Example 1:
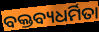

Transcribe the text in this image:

ବକ୍ତବ୍ୟଧର୍ମିତା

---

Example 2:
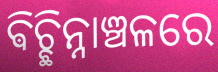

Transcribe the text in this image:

ଵିଚ୍ଛିନ୍ନାଞ୍ଚଳରେ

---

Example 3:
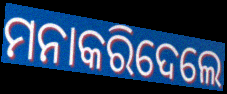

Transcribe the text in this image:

ମନାକରିଦେଲେ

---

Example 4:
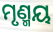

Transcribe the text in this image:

ମୃଣ୍ମୟ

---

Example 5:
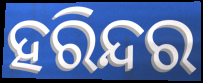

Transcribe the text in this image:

ହରିନ୍ଦର